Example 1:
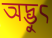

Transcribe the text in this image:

অদ্ভুৎ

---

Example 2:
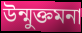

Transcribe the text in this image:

উন্মুক্তমনা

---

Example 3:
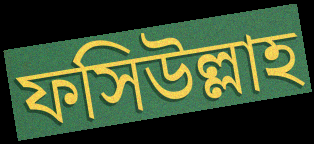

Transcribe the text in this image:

ফসিউল্লাহ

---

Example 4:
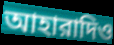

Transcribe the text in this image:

আহারাদিও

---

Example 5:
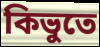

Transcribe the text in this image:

কিভুতে